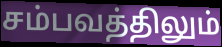
சம்பவத்திலும்